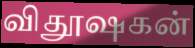
விதூஷகன்